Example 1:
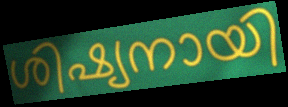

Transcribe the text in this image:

ശിഷ്യനായി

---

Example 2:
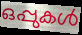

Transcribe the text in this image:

ഒപ്പുകൾ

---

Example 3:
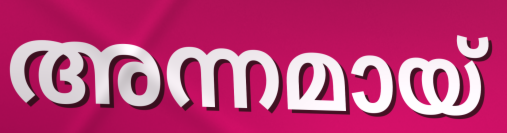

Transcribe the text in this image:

അന്നമായ്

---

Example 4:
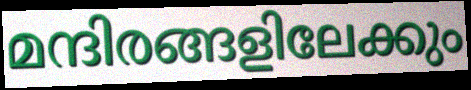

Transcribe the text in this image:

മന്ദിരങ്ങളിലേക്കും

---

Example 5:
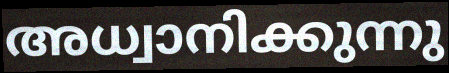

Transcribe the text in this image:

അധ്വാനിക്കുന്നു